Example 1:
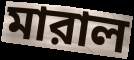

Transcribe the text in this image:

মারাল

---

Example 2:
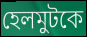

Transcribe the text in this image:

হেলমুটকে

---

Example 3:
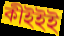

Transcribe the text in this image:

কীইইই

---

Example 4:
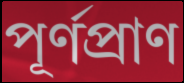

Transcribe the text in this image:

পূর্ণপ্রাণ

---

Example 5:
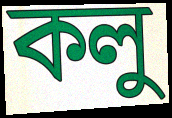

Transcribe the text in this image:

কলু